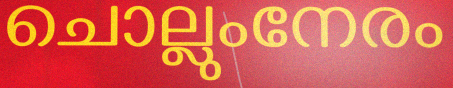
ചൊല്ലുംനേരം